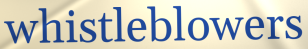
whistleblowers